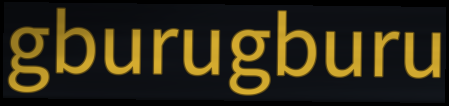
gburugburu